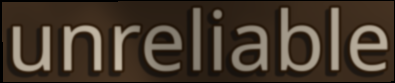
unreliable